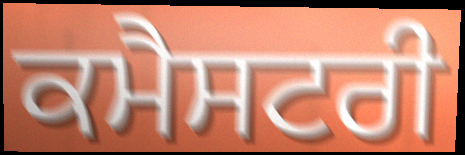
ਕਮੈਸਟਰੀ